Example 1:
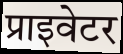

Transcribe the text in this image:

प्राइवेटर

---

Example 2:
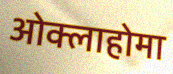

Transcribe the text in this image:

ओक्लाहोमा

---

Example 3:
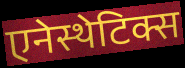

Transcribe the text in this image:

एनेस्थेटिक्स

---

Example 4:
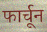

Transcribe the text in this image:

फार्चून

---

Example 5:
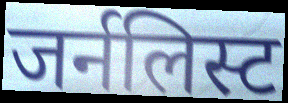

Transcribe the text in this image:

जर्नलिस्ट